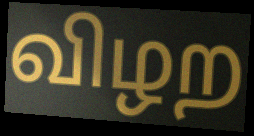
விழற